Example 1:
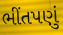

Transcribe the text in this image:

ભીંતપણું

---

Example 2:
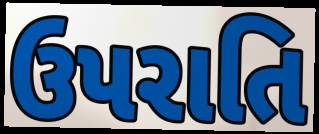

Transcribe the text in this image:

ઉપરાતિ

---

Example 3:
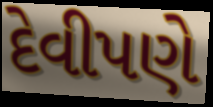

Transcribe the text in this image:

દેવીપણે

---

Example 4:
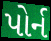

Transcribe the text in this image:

પોર્ન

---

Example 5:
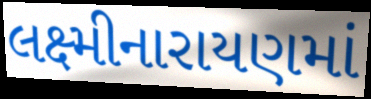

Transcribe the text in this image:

લક્ષ્મીનારાયણમાં